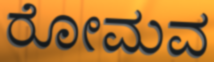
ರೋಮವ